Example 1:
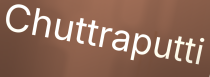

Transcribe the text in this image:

Chuttraputti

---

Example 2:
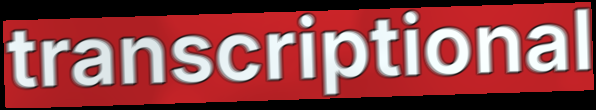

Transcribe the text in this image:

transcriptional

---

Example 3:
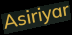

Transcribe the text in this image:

Asiriyar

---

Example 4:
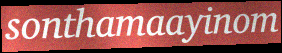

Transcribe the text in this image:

sonthamaayinom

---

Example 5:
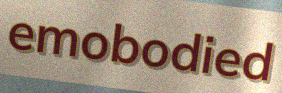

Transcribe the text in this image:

emobodied